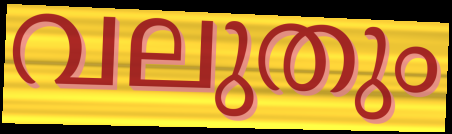
വലുതും